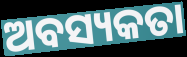
ଅବସ୍ୟକତା